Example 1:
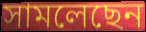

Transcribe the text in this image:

সামলেছেন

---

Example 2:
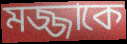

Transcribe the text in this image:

মজ্জাকে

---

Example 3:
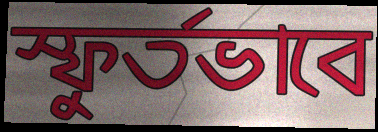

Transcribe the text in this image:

স্ফুর্তভাবে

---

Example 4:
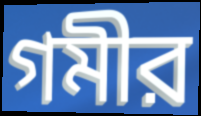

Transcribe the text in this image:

গমীর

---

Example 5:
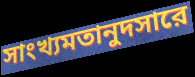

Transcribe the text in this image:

সাংখ্যমতানুদসারে